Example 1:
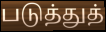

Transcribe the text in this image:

படுத்துத்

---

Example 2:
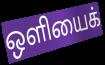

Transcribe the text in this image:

ஒளியைக்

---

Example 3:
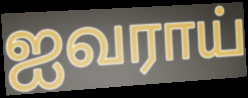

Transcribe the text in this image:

ஐவராய்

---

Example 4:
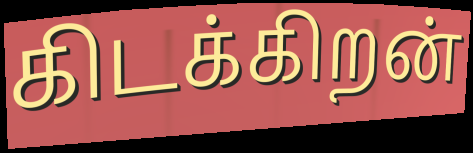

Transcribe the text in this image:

கிடக்கிறன்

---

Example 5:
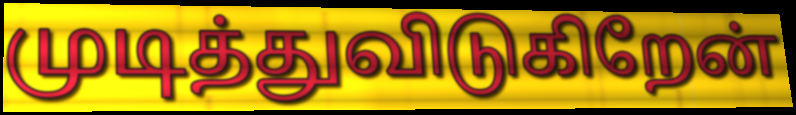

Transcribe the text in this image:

முடித்துவிடுகிறேன்